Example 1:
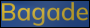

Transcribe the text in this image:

Bagade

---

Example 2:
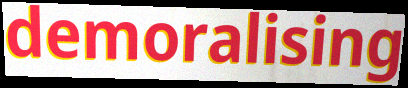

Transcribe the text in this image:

demoralising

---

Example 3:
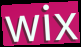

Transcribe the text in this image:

wix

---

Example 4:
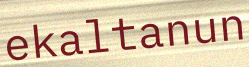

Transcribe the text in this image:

ekaltanun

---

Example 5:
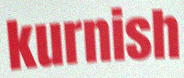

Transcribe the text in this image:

kurnish